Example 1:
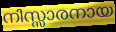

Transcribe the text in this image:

നിസ്സാരനായ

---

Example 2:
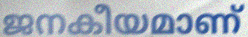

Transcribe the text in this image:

ജനകീയമാണ്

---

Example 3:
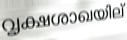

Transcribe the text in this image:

വൃക്ഷശാഖയില്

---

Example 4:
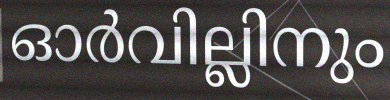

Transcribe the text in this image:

ഓർവില്ലിനും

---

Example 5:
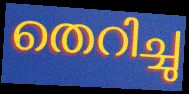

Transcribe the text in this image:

തെറിച്ചു